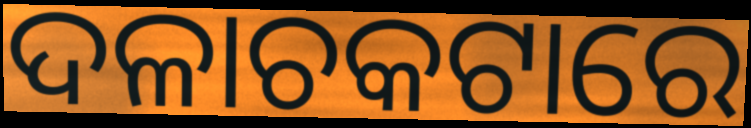
ଦଳାଚକଟାରେ